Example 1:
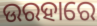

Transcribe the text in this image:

ଉରହାରେ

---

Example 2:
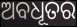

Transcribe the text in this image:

ଅବଧୂତର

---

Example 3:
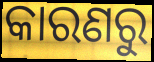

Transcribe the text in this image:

କାରଣରୁ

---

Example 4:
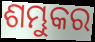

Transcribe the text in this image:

ଶମ୍ଭୁକର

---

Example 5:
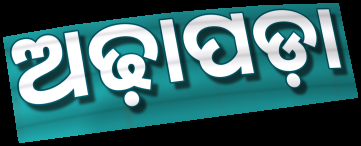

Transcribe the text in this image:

ଅଢ଼ାପଡ଼ା